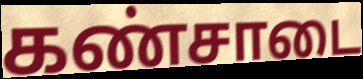
கண்சாடை